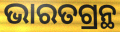
ଭାରତଗ୍ରନ୍ଥ